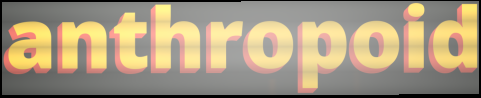
anthropoid